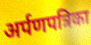
अर्पणपत्रिका